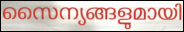
സൈന്യങ്ങളുമായി